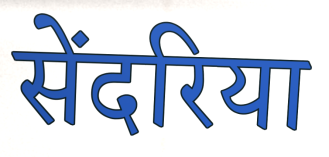
सेंदरिया